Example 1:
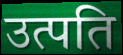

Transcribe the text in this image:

उत्पति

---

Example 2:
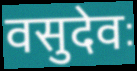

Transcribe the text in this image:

वसुदेवः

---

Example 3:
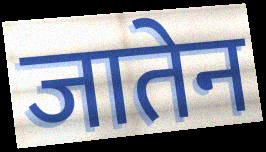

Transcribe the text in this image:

जातेन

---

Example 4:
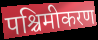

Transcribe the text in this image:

पश्चिमीकरण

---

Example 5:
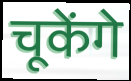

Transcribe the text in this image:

चूकेंगे